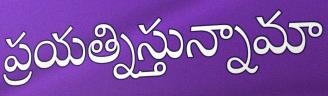
ప్రయత్నిస్తున్నామా